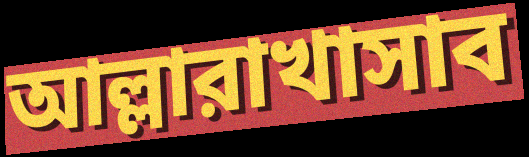
আল্লারাখাসাব